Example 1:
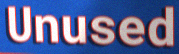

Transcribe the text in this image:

Unused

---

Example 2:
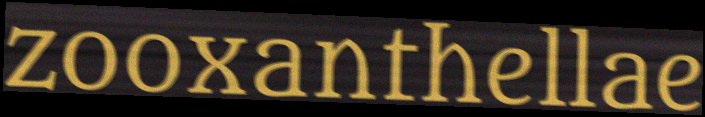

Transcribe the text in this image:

zooxanthellae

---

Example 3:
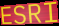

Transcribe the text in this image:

ESRI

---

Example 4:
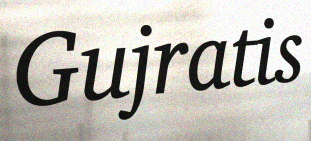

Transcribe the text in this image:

Gujratis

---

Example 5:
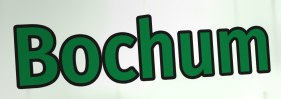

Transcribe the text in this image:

Bochum